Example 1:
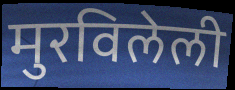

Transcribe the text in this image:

मुरविलेली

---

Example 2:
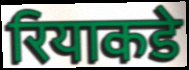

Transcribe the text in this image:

रियाकडे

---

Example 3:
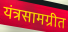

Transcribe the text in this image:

यंत्रसामग्रीत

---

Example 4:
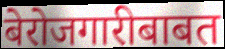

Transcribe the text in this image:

बेरोजगारीबाबत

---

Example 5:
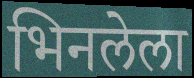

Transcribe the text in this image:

भिनलेला